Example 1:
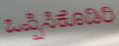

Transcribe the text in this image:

ಒಪ್ಪಿಸಿಕೊಡಿರಿ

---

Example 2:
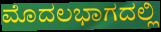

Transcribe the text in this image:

ಮೊದಲಭಾಗದಲ್ಲಿ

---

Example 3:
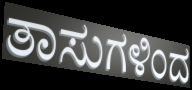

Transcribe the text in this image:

ತಾಸುಗಳಿಂದ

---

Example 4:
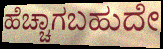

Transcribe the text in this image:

ಹೆಚ್ಚಾಗಬಹುದೇ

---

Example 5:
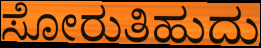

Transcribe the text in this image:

ಸೋರುತಿಹುದು